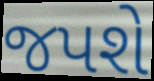
જપશે